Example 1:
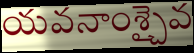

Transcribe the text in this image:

యవనాంశ్చైవ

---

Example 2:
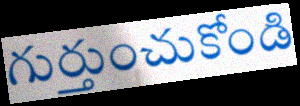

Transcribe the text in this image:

గుర్తుంచుకోండి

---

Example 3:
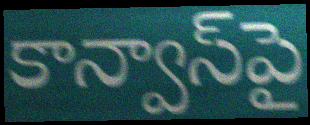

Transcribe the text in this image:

కాన్వాస్‌పై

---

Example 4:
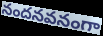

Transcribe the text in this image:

నందనవనంగా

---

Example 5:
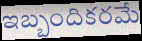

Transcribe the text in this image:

ఇబ్బందికరమే